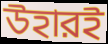
উহারই